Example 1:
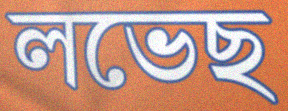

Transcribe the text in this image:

লভেছ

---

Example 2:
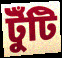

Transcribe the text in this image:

টুঁটি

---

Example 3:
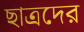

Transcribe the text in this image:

ছাত্রদের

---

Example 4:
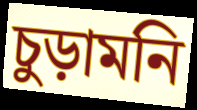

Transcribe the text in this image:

চুড়ামনি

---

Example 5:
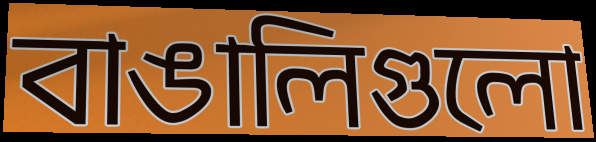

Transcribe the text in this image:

বাঙালিগুলো